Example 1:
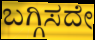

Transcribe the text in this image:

ಬಗ್ಗಿಸದೇ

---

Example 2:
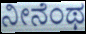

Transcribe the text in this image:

ನೀನೆಂಥ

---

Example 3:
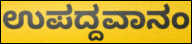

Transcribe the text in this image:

ಉಪದ್ದವಾನಂ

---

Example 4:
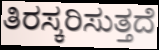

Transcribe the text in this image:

ತಿರಸ್ಕರಿಸುತ್ತದೆ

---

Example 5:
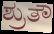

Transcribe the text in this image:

ಶ್ರುತೌ